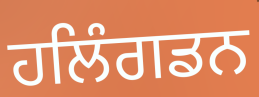
ਹਲਿੰਗਡਨ